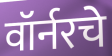
वॉर्नरचे